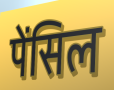
पेंसिल